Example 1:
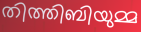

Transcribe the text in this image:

തിത്തിബിയുമ്മ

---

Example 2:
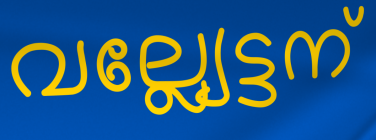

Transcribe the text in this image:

വല്ല്യേട്ടന്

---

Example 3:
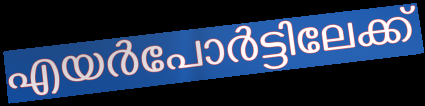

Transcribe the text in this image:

എയർപോർട്ടിലേക്ക്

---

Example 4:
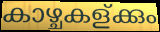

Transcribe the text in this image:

കാഴ്ചകള്ക്കും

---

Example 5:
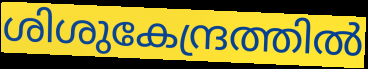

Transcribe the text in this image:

ശിശുകേന്ദ്രത്തിൽ